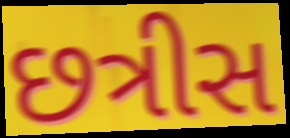
છત્રીસ